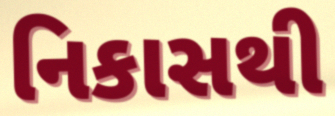
નિકાસથી